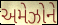
અમેઝોને